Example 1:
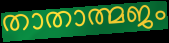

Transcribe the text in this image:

താതാത്മജം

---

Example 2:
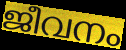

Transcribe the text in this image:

ജീവനം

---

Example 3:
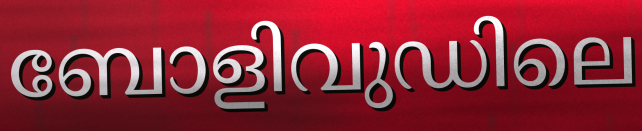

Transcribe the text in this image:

ബോളിവുഡിലെ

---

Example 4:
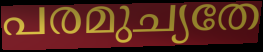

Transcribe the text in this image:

പരമുച്യതേ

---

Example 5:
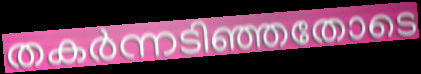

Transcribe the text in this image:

തകർന്നടിഞ്ഞതോടെ